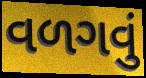
વળગવું